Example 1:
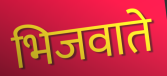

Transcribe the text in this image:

भिजवाते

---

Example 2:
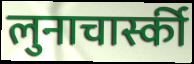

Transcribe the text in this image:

लुनाचार्स्की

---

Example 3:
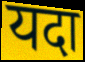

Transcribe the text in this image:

यदा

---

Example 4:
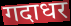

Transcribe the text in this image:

गदाधर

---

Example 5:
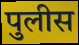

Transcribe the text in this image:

पुलीस